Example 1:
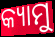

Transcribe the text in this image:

କ୍ୟାମୁ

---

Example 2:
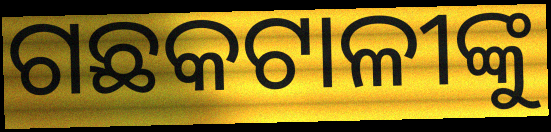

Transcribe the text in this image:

ଗଛକଟାଳୀଙ୍କୁ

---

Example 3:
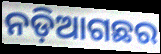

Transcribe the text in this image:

ନଡ଼ିଆଗଛର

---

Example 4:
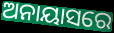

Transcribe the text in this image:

ଅନାୟାସରେ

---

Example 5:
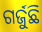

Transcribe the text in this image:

ଗର୍ଜୁଛି